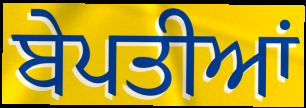
ਬੇਪਤੀਆਂ